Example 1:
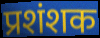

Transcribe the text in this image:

प्रशंशक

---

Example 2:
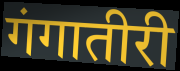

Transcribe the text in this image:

गंगातीरी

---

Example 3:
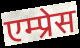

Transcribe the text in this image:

एम्प्रेस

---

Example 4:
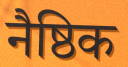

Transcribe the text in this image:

नैष्ठिक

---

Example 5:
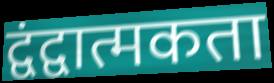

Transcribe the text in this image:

द्वंद्वात्मकता